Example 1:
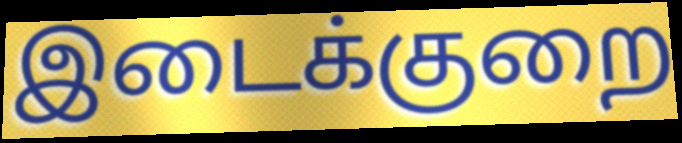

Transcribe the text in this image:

இடைக்குறை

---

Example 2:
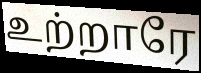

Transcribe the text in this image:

உற்றாரே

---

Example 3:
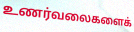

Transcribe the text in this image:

உணர்வலைகளைக்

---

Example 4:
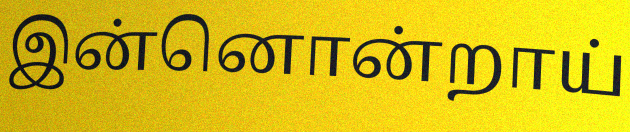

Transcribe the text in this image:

இன்னொன்றாய்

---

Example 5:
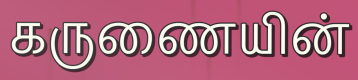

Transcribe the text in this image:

கருணையின்